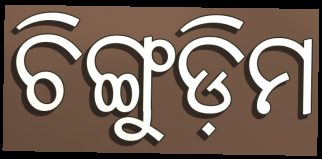
ଚିଙ୍ଗୁଡ଼ିମ